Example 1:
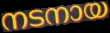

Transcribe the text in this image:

നടനായ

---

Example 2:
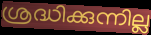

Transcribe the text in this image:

ശ്രദ്ധിക്കുന്നില്ല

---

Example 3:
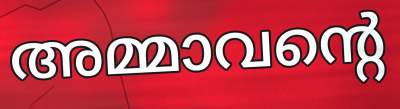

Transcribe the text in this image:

അമ്മാവന്റെ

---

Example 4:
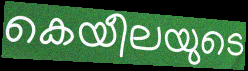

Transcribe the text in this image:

കെയീലയുടെ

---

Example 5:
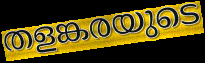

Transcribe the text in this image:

തളങ്കരയുടെ